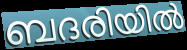
ബദരിയിൽ